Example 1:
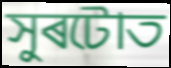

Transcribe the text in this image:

সুৰটোত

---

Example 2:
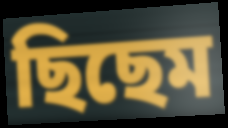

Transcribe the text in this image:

ছিছেম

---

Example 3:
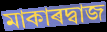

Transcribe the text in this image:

মাকাৰদ্বাজ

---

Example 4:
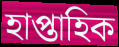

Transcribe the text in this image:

হাপ্তাহিক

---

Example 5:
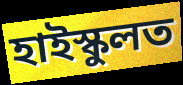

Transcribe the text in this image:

হাইস্কুলত